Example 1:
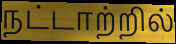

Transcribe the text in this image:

நட்டாற்றில்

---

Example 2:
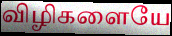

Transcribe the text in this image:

விழிகளையே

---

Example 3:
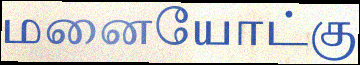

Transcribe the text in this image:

மனையோட்கு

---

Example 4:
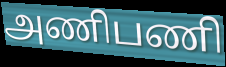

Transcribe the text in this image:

அணிபணி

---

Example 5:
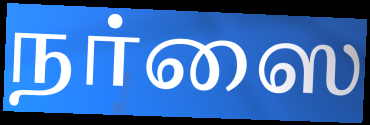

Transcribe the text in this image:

நர்ஸை